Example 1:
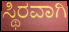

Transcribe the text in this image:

ಸ್ಥಿರವಾಗಿ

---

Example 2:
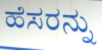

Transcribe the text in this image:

ಹೆಸರನ್ನು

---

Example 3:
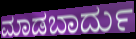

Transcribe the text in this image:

ಮಾಡಬಾರ್ದು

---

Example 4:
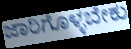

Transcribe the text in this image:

ಜಾರಿಗೊಳ್ಳಬೇಕು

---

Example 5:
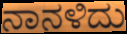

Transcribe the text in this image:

ನಾನಳಿದು